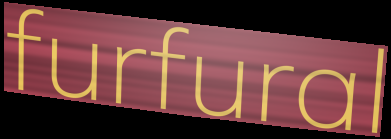
furfural